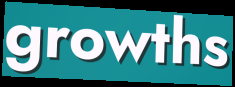
growths